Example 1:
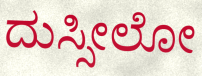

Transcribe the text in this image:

ದುಸ್ಸೀಲೋ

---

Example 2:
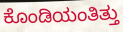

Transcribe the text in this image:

ಕೊಂಡಿಯಂತಿತ್ತು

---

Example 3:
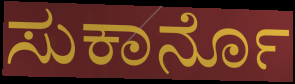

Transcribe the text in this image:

ಸುಕಾರ್ನೊ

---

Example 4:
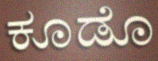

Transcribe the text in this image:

ಕೂಡೊ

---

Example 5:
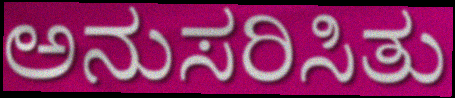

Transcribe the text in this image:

ಅನುಸರಿಸಿತು